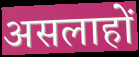
असलाहों